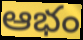
ఆభం